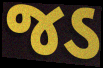
જડ